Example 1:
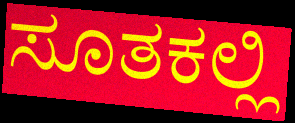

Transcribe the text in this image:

ಸೂತಕಲ್ಲಿ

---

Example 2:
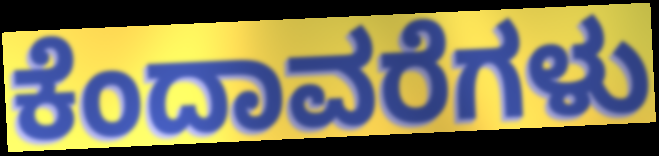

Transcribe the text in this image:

ಕೆಂದಾವರೆಗಳು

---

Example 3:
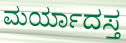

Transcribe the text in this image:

ಮರ್ಯಾದಸ್ತ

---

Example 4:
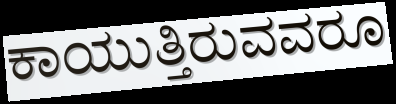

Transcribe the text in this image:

ಕಾಯುತ್ತಿರುವವರೂ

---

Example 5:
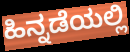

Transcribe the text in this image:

ಹಿನ್ನಡೆಯಲ್ಲಿ